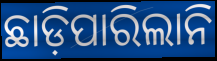
ଛାଡ଼ିପାରିଲାନି